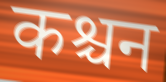
कश्चन